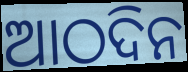
ଆଠଦିନ